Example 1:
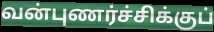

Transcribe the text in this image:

வன்புணர்ச்சிக்குப்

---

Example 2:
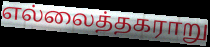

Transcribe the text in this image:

எல்லைத்தகராறு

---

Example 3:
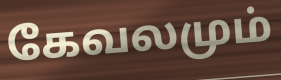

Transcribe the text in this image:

கேவலமும்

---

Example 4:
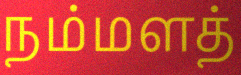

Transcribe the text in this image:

நம்மளத்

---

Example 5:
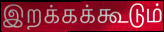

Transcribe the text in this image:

இறக்கக்கூடும்